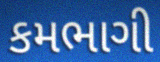
કમભાગી